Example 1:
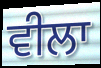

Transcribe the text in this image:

ਵੀਲਾ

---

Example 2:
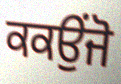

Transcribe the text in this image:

ਕਕਉਂਜੋ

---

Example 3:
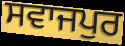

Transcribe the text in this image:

ਸਵਾਜਪੁਰ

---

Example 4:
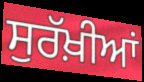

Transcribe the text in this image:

ਸੁਰੱਖ਼ੀਆਂ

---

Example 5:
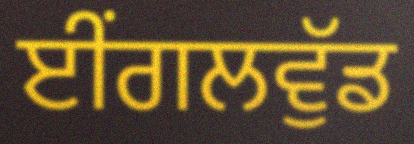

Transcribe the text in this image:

ਈਂਗਲਵੁੱਡ